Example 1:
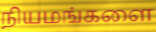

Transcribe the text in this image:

நியமங்களை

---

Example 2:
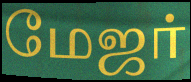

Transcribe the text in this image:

மேஜர்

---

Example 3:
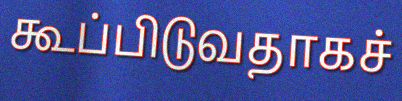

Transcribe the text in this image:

கூப்பிடுவதாகச்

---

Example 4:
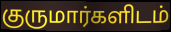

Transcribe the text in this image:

குருமார்களிடம்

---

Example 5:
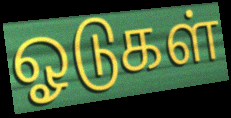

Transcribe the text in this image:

ஓடுகள்